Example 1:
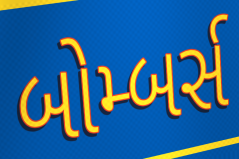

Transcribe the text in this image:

બોમ્બર્સ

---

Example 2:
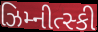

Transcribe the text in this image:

ઝિમ્નીત્સ્કી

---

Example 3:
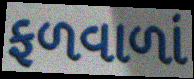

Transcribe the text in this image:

ફળવાળાં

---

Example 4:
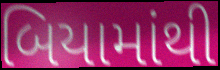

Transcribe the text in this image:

બિયામાંથી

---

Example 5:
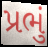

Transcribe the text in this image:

પ્રભું